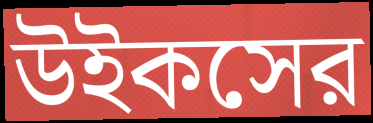
উইকসের